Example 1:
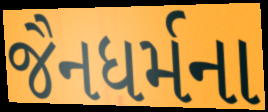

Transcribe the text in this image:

જૈનધર્મના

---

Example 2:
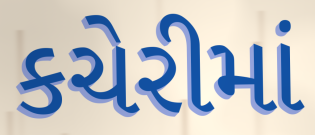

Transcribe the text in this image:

કચેરીમાં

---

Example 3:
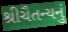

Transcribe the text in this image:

શ્રીચૈતન્યનું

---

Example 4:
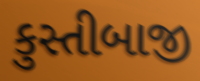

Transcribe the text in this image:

કુસ્તીબાજી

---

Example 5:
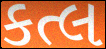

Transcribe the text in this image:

કત્લ